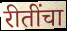
रीतींचा